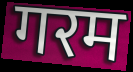
गरम